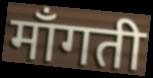
माँगती